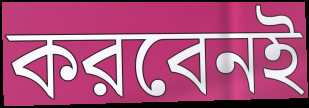
করবেনই